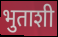
भुताशी